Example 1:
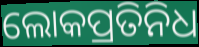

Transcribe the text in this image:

ଲୋକପ୍ରତିନିଧ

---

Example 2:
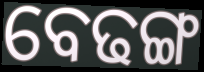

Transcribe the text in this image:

ବେଢଙ୍ଗ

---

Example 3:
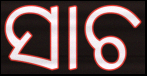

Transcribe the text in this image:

ସାଚ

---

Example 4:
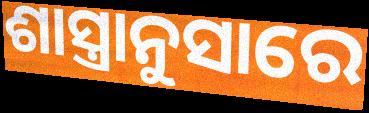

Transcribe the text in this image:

ଶାସ୍ତ୍ରାନୁସାରେ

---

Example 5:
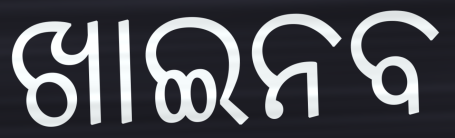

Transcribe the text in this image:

ଖାଇନବ